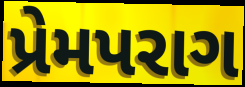
પ્રેમપરાગ